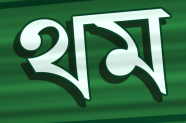
থম